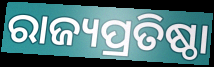
ରାଜ୍ୟପ୍ରତିଷ୍ଠା